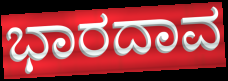
ಭಾರದಾವ